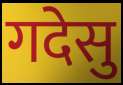
गदेसु